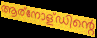
ആര്നോള്ഡിന്റെ